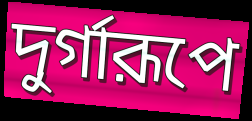
দুর্গারূপে